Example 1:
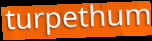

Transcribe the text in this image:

turpethum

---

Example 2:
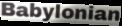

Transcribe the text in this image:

Babylonian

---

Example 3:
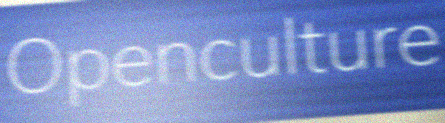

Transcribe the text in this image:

Openculture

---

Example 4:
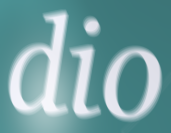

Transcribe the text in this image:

dio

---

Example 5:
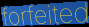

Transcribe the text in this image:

forfeited